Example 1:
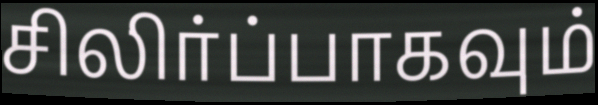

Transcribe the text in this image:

சிலிர்ப்பாகவும்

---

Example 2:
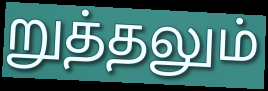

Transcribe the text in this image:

றுத்தலும்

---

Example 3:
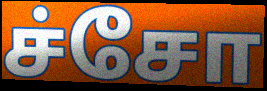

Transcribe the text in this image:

ச்சோ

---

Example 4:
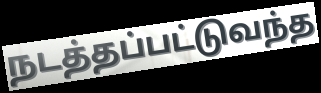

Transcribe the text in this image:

நடத்தப்பட்டுவந்த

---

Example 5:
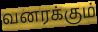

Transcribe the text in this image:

வனரக்கும்